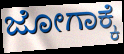
ಜೋಗಾಕ್ಕೆ